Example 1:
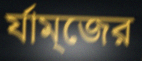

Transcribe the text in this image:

র্যাম্জের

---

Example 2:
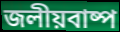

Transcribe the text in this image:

জলীয়বাষ্প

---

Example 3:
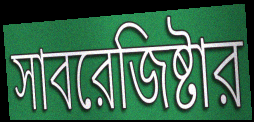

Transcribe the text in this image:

সাবরেজিষ্টার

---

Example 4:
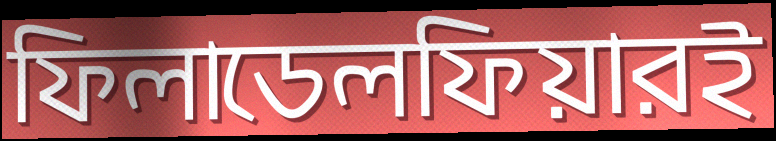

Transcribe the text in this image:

ফিলাডেলফিয়ারই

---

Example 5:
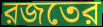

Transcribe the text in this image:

রজতের